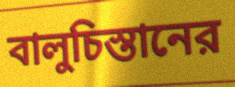
বালুচিস্তানের